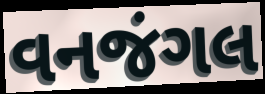
વનજંગલ